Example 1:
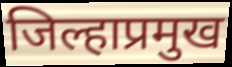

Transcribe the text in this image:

जिल्हाप्रमुख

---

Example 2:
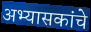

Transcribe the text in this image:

अभ्यासकांचे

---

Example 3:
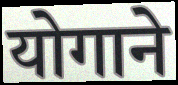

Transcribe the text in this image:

योगाने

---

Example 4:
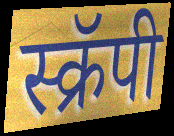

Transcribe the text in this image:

स्क्रॅपी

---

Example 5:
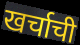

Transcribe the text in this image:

खर्चाची